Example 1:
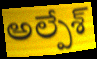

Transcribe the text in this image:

అల్పేశ్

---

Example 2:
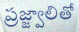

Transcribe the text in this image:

ప్రజ్జ్వాలితో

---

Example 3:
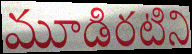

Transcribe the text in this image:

మూడిరటిని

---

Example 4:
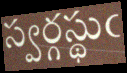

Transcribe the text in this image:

స్వర్గస్థుఁ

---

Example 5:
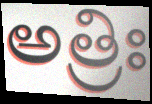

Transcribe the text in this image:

అత్రిః